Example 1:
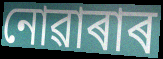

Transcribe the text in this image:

নোৱাৰাৰ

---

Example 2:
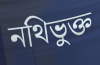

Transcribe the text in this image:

নথিভুক্ত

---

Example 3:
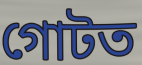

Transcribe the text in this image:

গোটত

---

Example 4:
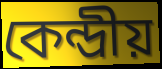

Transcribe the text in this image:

কেন্দ্ৰীয়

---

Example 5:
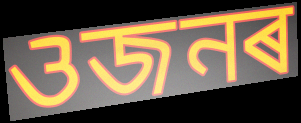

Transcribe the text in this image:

ওজনৰ